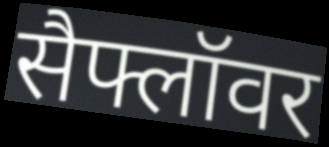
सैफ्लॉवर